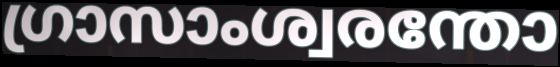
ഗ്രാസാംശ്വരന്തോ